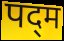
पद्‌म